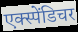
एक्स्पेंडिचर